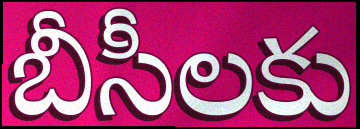
బీసీలకు